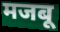
मजबू